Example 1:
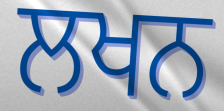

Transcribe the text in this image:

ਲਖਨ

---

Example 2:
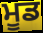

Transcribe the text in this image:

ਮੂਡ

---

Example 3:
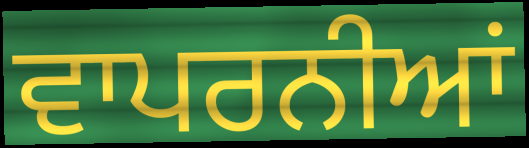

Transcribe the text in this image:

ਵਾਪਰਨੀਆਂ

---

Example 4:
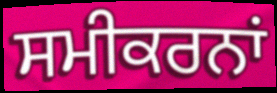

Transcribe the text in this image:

ਸਮੀਕਰਨਾਂ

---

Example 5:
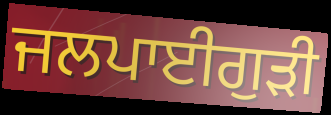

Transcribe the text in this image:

ਜਲਪਾਈਗੁਡ਼ੀ